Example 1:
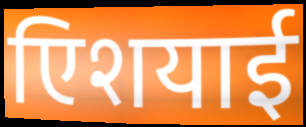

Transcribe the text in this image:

एिशयाई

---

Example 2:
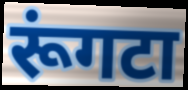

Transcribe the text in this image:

रूंगटा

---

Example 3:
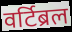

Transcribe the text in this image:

वर्टिब्रल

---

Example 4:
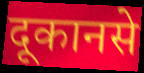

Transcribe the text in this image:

दूकानसे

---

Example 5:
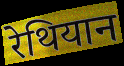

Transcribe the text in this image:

रेथियान